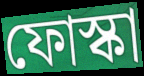
ফোস্কা